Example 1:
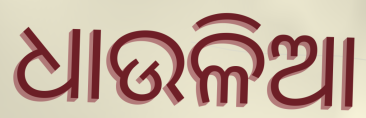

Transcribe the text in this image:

ଧାଉଳିଆ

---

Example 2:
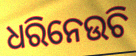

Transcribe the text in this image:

ଧରିନେଉଚି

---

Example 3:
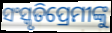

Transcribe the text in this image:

ସଂସ୍କୃତିପ୍ରେମୀଙ୍କୁ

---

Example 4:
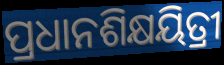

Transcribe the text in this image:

ପ୍ରଧାନଶିକ୍ଷୟିତ୍ରୀ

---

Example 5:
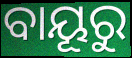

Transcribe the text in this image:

ବାୟୂରୁ